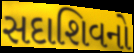
સદાશિવનો